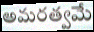
అమరత్వమే